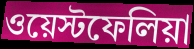
ওয়েস্টফেলিয়া